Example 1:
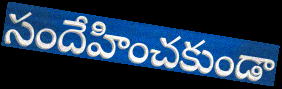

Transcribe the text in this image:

సందేహించకుండా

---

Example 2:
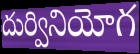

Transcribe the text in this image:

దుర్వినియోగ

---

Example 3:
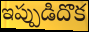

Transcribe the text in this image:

ఇప్పుడిదొక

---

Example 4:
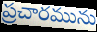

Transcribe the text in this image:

ప్రచారమును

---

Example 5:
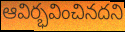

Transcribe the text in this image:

ఆవిర్భవించినదని